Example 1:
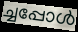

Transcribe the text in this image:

ച്ചപ്പോൾ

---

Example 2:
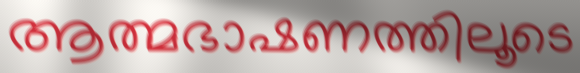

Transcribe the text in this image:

ആത്മഭാഷണത്തിലൂടെ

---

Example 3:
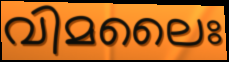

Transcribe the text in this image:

വിമലൈഃ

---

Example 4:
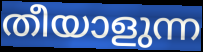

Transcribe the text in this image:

തീയാളുന്ന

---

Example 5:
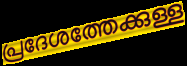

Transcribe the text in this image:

പ്രദേശത്തേക്കുള്ള